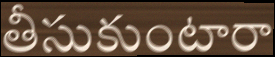
తీసుకుంటారా